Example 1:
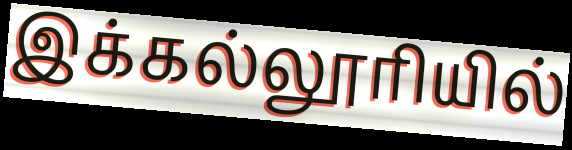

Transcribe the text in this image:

இக்கல்லூரியில்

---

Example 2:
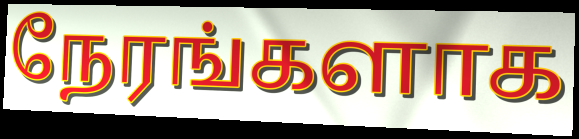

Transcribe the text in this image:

நேரங்களாக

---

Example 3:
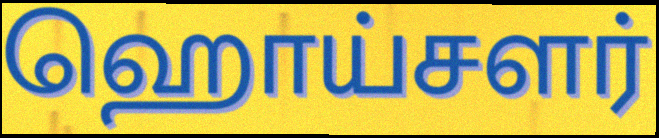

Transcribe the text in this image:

ஹொய்சளர்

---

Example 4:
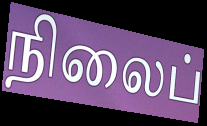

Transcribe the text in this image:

நிலைப்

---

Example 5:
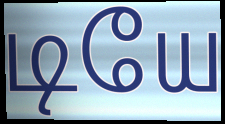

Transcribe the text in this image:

டியே